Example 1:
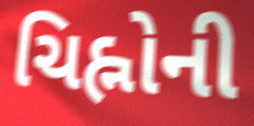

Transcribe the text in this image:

ચિહ્નોની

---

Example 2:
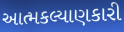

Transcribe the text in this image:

આત્મકલ્યાણકારી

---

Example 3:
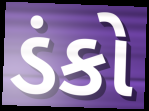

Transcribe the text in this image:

ડંકો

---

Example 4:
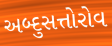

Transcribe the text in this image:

અબ્દુસત્તોરોવ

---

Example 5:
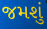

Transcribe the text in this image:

જમશું